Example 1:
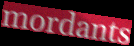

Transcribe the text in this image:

mordants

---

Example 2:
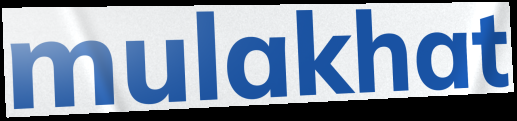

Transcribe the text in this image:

mulakhat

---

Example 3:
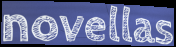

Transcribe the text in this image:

novellas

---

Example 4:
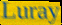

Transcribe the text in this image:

Luray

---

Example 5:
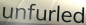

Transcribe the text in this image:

unfurled